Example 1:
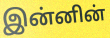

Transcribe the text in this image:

இன்னின்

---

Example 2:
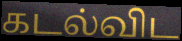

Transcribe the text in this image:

கடல்விட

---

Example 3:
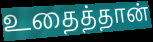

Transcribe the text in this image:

உதைத்தான்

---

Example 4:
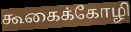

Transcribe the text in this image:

கூகைக்கோழி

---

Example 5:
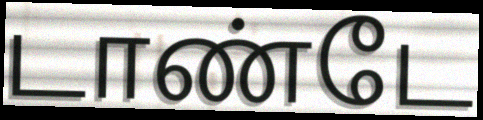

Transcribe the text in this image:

டாண்டே